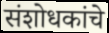
संशोधकांचे